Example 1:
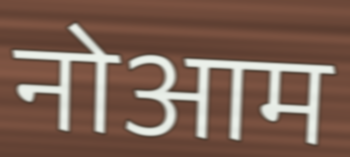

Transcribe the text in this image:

नोआम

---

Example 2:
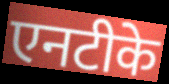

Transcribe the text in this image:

एनटीके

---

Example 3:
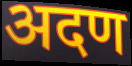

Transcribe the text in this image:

अदण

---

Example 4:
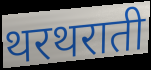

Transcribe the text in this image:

थरथराती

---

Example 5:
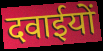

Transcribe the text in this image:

दवाईयों